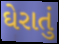
ઘેરાતું